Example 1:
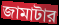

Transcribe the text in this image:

জামাটার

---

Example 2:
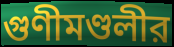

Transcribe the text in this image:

গুণীমণ্ডলীর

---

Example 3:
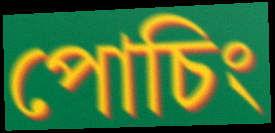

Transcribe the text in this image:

পোচিং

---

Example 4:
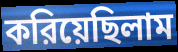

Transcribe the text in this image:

করিয়েছিলাম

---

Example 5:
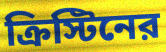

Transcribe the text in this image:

ক্রিস্টিনের